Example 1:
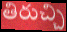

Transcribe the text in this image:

తిరుచ్చి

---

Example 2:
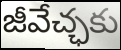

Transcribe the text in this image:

జీవేచ్ఛకు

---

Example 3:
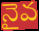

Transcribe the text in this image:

నైవ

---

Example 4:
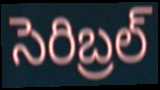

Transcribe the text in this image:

సెరిబ్రల్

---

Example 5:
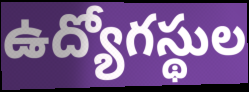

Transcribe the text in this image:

ఉద్యోగస్థుల